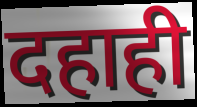
दहाही